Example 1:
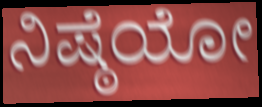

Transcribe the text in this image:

ನಿಷ್ಠೆಯೋ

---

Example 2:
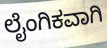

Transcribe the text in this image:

ಲೈಂಗಿಕವಾಗಿ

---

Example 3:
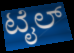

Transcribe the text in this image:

ಟೈಲ್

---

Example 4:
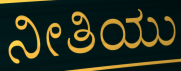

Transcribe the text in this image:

ನೀತಿಯು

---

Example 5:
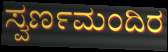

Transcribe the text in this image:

ಸ್ವರ್ಣಮಂದಿರ